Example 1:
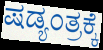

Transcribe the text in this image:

ಷಡ್ಯಂತ್ರಕ್ಕೆ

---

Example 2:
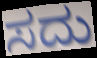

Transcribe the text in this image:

ಸದು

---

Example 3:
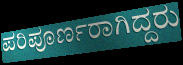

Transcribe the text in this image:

ಪರಿಪೂರ್ಣರಾಗಿದ್ದರು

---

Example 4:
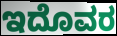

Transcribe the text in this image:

ಇದೊವರ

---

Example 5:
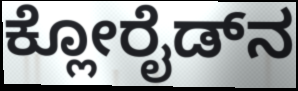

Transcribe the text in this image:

ಕ್ಲೋರೈಡ್‍ನ